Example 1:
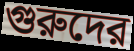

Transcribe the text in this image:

গুরুদের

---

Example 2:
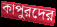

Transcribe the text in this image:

কাপুরদের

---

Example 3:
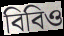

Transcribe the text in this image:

বিবিও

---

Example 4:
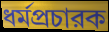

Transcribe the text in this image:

ধর্মপ্রচারক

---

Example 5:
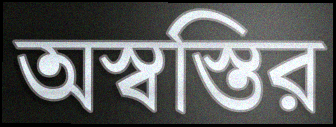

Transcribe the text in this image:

অস্বস্তির